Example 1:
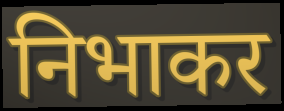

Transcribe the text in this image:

निभाकर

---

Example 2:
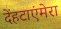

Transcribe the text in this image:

देंहटाएंमेरा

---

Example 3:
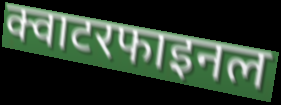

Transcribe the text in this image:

क्वाटरफाइनल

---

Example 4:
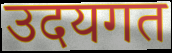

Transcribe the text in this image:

उदयगत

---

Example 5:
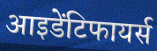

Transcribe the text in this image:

आइडेंटिफायर्स